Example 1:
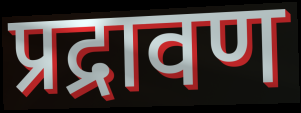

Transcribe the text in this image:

प्रद्रावण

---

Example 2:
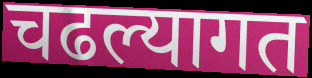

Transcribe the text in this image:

चढल्यागत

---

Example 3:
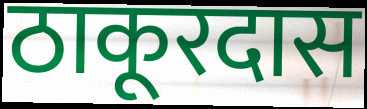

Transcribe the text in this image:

ठाकूरदास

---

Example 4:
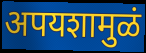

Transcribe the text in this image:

अपयशामुळं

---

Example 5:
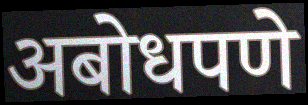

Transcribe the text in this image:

अबोधपणे